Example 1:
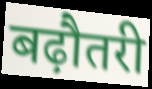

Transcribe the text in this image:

बढ़ौतरी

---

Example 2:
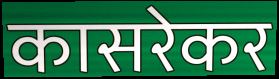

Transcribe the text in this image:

कासरेकर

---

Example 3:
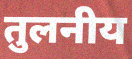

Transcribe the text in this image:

तुलनीय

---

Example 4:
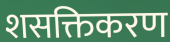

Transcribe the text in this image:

शसक्तिकरण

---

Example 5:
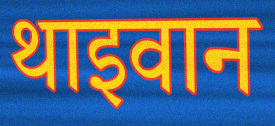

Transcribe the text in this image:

थाइवान